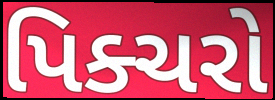
પિક્ચરો